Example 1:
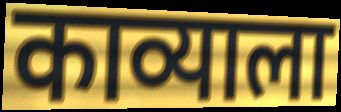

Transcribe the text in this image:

काव्याला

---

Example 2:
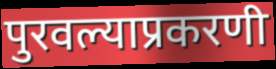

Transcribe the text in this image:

पुरवल्याप्रकरणी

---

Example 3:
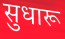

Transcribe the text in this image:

सुधारू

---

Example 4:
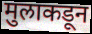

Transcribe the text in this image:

मुलाकडून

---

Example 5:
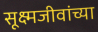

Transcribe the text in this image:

सूक्ष्मजीवांच्या